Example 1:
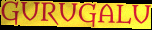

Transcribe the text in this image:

GURUGALU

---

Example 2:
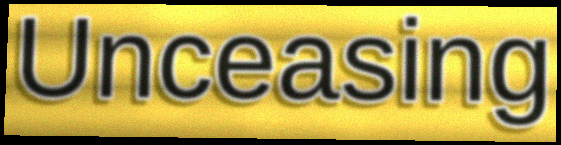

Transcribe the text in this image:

Unceasing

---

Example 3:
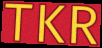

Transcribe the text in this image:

TKR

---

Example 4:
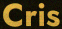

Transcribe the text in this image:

Cris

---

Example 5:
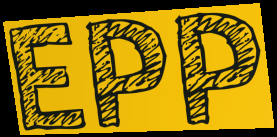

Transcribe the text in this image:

EPP